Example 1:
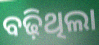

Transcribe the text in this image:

ବଢ଼ିଥିଲା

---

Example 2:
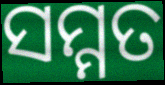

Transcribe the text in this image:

ସମ୍ମତ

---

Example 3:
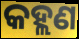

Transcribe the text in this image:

କହ୍ଲଣ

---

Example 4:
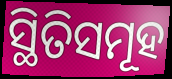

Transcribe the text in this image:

ସ୍ଥିତିସମୂହ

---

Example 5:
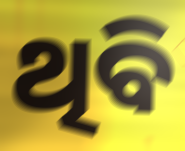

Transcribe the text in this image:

ଥିବି